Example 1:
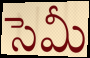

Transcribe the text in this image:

సెమీ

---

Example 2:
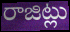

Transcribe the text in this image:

రాజిట్లు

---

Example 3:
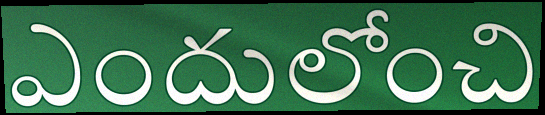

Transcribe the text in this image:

ఎందులోంచి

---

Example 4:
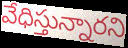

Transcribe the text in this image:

వేధిస్తున్నారని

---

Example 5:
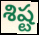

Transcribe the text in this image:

శిష్ట